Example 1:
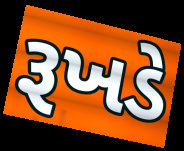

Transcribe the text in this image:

રૂખડે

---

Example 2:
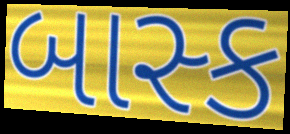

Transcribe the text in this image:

બાસ્ક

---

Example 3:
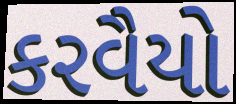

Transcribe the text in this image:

કરવૈયો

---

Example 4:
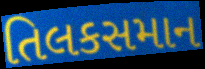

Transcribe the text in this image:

તિલકસમાન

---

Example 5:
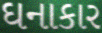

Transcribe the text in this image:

ઘનાકાર